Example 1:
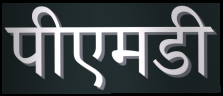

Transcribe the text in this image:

पीएमडी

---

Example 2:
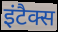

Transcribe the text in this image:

इंटैक्स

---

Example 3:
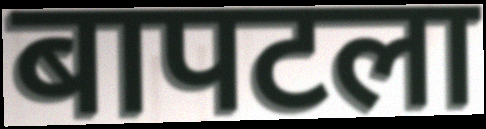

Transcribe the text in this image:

बापटला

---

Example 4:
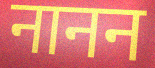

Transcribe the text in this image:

नानन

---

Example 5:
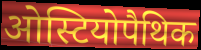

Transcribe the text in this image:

ओस्टियोपैथिक